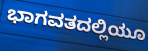
ಭಾಗವತದಲ್ಲಿಯೂ